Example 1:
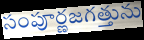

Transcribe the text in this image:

సంపూర్ణజగత్తును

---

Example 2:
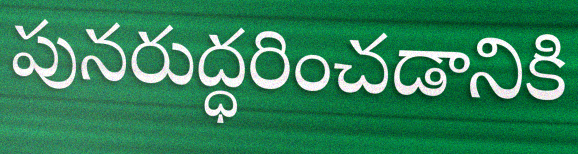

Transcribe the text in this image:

పునరుద్ధరించడానికి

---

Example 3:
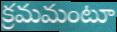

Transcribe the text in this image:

క్రమమంటూ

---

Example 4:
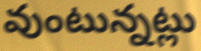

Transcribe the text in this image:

వుంటున్నట్లు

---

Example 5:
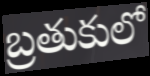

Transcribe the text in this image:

బ్రతుకులో